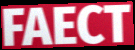
FAECT